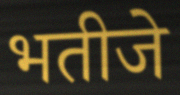
भतीजे